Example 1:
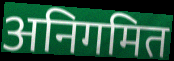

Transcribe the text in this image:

अनिगमित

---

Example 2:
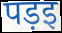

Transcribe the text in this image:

पड़इ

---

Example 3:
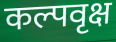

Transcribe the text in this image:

कल्‍पवृक्ष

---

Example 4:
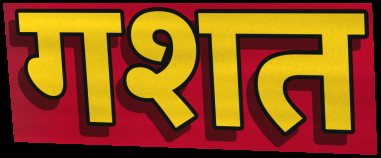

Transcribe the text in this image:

गशत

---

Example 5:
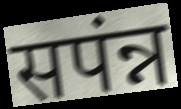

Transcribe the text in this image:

सपंन्न